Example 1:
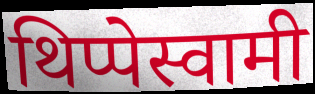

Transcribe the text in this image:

थिप्पेस्वामी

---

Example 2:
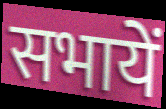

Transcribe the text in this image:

सभायें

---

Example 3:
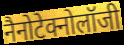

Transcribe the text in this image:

नैनोटेक्नोलॉजी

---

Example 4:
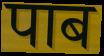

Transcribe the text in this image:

पाब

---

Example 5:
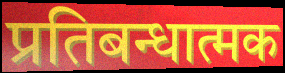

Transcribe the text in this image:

प्रतिबन्धात्मक